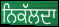
ਨਿਕੱਲਦਾ